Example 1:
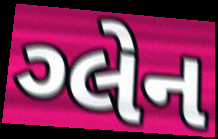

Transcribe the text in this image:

ગ્લેન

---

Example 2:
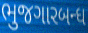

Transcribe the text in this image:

ભુજગારબન્ધ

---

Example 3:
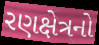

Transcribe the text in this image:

રણક્ષેત્રનો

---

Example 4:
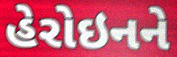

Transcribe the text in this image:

હેરોઇનને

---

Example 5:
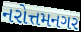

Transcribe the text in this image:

નરોત્તમનગર